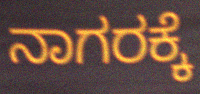
ನಾಗರಕ್ಕೆ